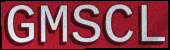
GMSCL